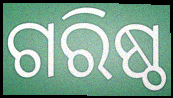
ଗରିଷ୍ଠ